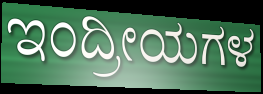
ಇಂದ್ರೀಯಗಳ